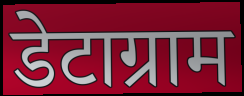
डेटाग्राम